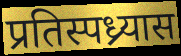
प्रतिस्पध्र्यास